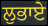
ਲੁਭਾਏ